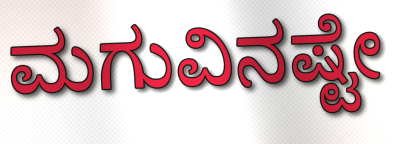
ಮಗುವಿನಷ್ಟೇ